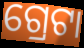
ଗ୍ରେଟା